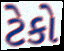
ટેકો